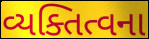
વ્યક્તિત્વના